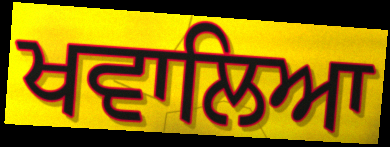
ਖਵਾਲਿਆ